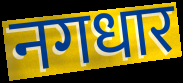
नगधार